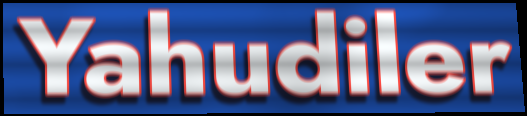
Yahudiler